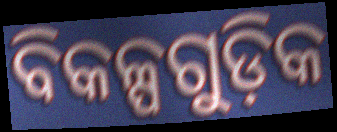
ବିକଳ୍ପଗୁଡ଼ିକ